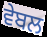
ਵੇਬਲ